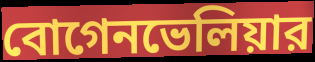
বোগেনভেলিয়ার